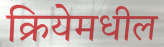
क्रियेमधील